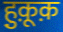
ह़ुक़ूक़